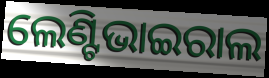
ଲେଣ୍ଟିଭାଇରାଲ